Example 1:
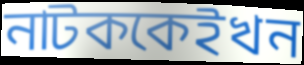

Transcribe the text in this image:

নাটককেইখন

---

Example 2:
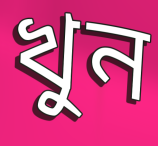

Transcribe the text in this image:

খুন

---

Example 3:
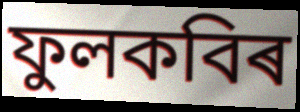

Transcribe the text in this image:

ফুলকবিৰ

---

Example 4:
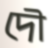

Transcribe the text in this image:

দৌ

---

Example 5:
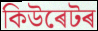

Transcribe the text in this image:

কিউৰেটৰ